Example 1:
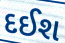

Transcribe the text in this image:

દઈશ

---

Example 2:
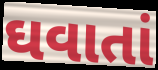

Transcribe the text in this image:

ઘવાતાં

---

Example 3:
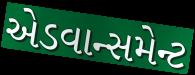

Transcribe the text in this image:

એડવાન્સમેન્ટ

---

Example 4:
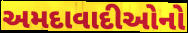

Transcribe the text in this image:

અમદાવાદીઓનો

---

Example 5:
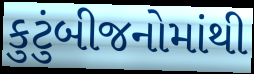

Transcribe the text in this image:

કુટુંબીજનોમાંથી